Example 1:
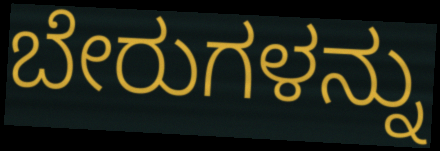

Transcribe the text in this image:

ಬೇರುಗಳನ್ನು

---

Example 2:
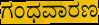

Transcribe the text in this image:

ಗಂಧವಾರಣ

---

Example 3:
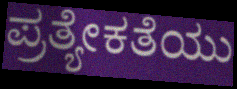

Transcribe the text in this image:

ಪ್ರತ್ಯೇಕತೆಯು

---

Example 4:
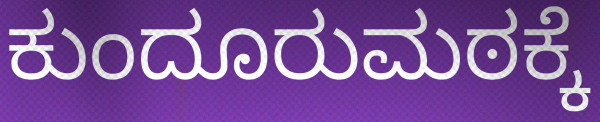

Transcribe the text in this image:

ಕುಂದೂರುಮಠಕ್ಕೆ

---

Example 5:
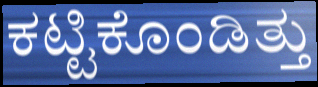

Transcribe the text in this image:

ಕಟ್ಟಿಕೊಂಡಿತ್ತು